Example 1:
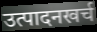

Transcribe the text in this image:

उत्पादनखर्च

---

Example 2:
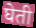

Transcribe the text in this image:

घेती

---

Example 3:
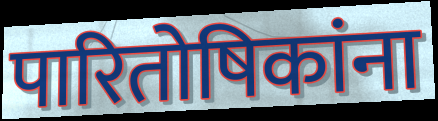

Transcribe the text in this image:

पारितोषिकांना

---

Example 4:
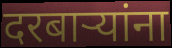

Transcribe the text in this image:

दरबाऱ्यांना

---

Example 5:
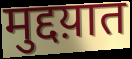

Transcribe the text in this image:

मुद्दय़ात